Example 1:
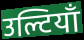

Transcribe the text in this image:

उल्टियाँ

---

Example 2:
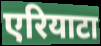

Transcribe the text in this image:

एरियाटा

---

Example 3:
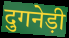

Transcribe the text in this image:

दुगनेड़ी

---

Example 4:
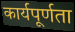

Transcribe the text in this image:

कार्यपूर्णता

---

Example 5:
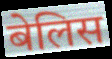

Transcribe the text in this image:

बेलिस